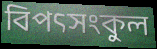
বিপৎসংকুল